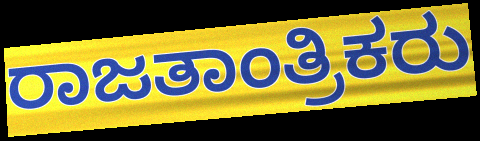
ರಾಜತಾಂತ್ರಿಕರು